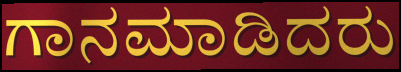
ಗಾನಮಾಡಿದರು